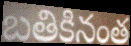
బతికినంత